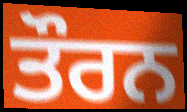
ਤੌਰਨ